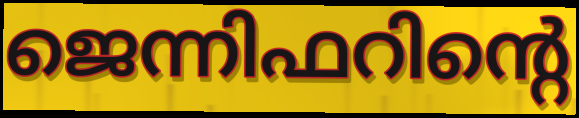
ജെന്നിഫറിന്റെ